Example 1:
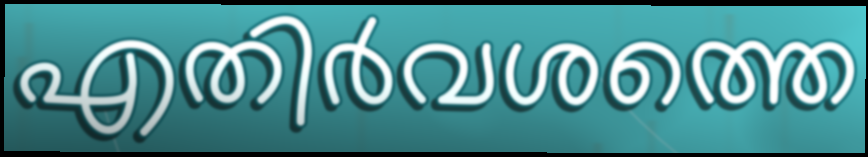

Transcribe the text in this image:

എതിർവശത്തെ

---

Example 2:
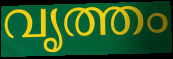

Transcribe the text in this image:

വൃത്തം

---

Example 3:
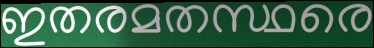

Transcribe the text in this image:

ഇതരമതസ്ഥരെ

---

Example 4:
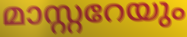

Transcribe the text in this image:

മാസ്റ്ററേയും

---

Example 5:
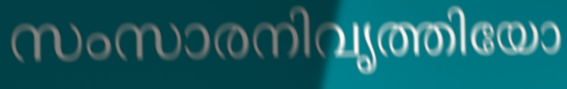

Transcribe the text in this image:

സംസാരനിവൃത്തിയോ